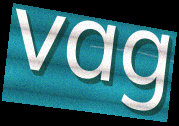
vag